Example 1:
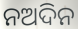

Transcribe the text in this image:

ନଅଦିନ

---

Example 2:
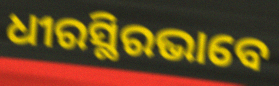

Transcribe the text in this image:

ଧୀରସ୍ଥିରଭାବେ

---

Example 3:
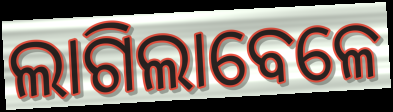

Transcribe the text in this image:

ଲାଗିଲାବେଳେ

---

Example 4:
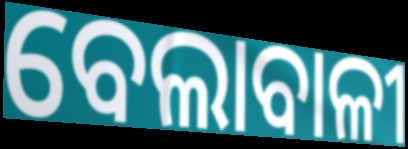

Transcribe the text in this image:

ବେଲାବାଳୀ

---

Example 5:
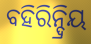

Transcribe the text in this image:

ବହିରିନ୍ଦ୍ରିୟ